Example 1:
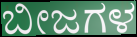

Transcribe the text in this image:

ಬೀಜಗಳ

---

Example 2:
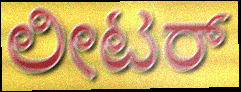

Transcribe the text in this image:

ಲೀಟರ್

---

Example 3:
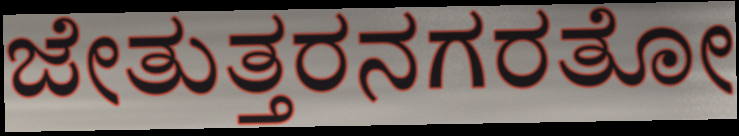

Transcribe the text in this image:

ಜೇತುತ್ತರನಗರತೋ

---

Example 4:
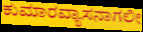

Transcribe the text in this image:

ಕುಮಾರವ್ಯಾಸನಾಗಲೀ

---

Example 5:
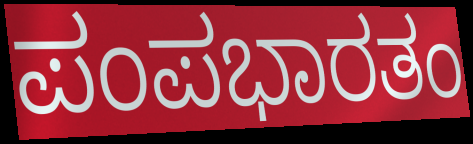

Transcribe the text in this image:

ಪಂಪಭಾರತಂ